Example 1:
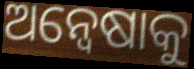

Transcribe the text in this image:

ଅନ୍ୱେଷାକୁ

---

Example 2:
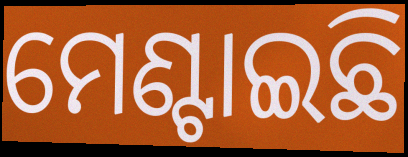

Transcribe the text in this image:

ମେଣ୍ଟାଇଛି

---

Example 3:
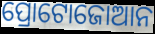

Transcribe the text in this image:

ପ୍ରୋଟୋଜୋଆନ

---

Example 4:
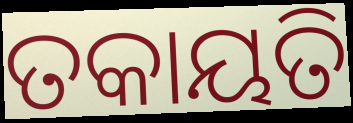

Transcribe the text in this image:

ତକାୟତି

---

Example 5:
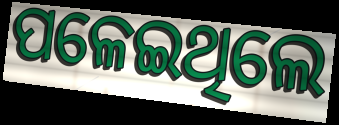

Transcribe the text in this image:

ପଳେଇଥିଲେ